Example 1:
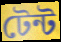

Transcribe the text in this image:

টেন্ট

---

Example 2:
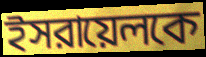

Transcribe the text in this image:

ইসরায়েলকে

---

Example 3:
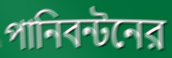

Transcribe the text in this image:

পানিবন্টনের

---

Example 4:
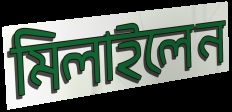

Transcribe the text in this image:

মিলাইলেন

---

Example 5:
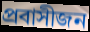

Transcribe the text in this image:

প্রবাসীজন